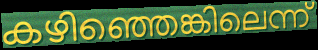
കഴിഞ്ഞെങ്കിലെന്ന്